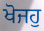
ਖੋਜਹੁ